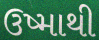
ઉષ્માથી